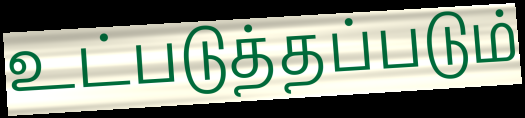
உட்படுத்தப்படும்